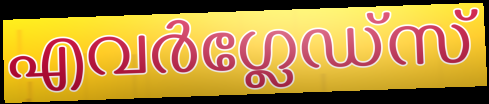
എവർഗ്ലേഡ്സ്